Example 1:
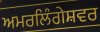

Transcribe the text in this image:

ਅਮਰਲਿੰਗੇਸ਼ਵਰ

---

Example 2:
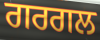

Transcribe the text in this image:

ਗਰਗਲ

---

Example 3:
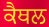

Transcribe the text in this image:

ਕੈਥਲ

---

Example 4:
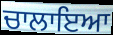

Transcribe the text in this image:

ਚਾਲਾਇਆ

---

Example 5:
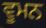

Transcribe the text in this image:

ਵੂਮਨ